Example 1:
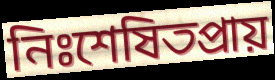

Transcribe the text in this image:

নিঃশেষিতপ্রায়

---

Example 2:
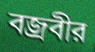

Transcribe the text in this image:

বজ্রবীর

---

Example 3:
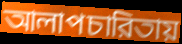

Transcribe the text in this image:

আলাপচারিতায়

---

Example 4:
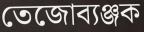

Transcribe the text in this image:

তেজোব্যঞ্জক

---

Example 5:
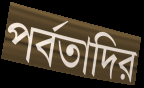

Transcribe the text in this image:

পর্বতাদির